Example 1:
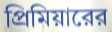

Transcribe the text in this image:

প্রিমিয়ারের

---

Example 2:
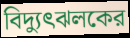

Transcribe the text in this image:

বিদ্যুৎঝলকের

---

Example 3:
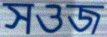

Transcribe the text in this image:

সওজ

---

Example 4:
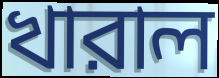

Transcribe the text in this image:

খারাল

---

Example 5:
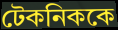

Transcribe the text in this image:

টেকনিককে